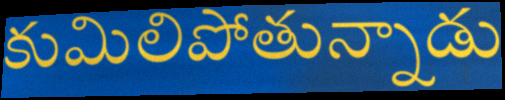
కుమిలిపోతున్నాడు